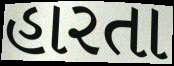
હારતા